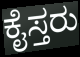
ಕೈಸ್ತರು